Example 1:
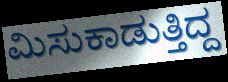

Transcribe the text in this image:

ಮಿಸುಕಾಡುತ್ತಿದ್ದ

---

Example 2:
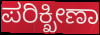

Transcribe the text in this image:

ಪರಿಕ್ಖೀಣಾ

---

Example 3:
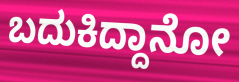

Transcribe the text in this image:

ಬದುಕಿದ್ದಾನೋ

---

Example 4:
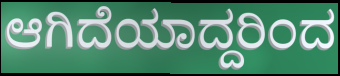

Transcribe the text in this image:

ಆಗಿದೆಯಾದ್ದರಿಂದ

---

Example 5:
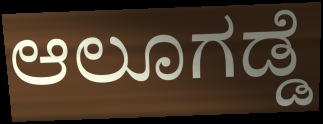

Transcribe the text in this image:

ಆಲೂಗಡ್ಡೆ